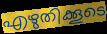
എഴുതിക്കൂടെ